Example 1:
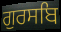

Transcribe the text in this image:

ਗੁਰਸਬਿ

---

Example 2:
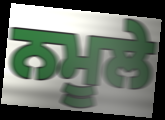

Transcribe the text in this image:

ਨਮੂਲੇ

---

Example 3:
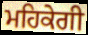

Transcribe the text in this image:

ਮਹਿਕੇਗੀ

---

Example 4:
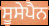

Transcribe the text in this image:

ਸੂਸੇਪੈਨ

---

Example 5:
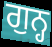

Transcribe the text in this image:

ਗੁਨ੍ਹ